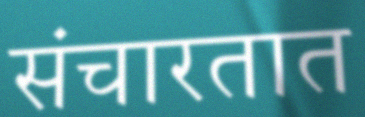
संचारतात